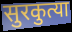
सुरकुत्या